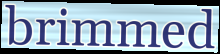
brimmed